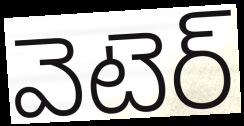
వెటెర్